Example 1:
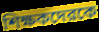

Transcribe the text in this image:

শিক্ষকদেরকে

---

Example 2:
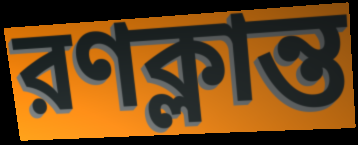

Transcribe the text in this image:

রণক্লান্ত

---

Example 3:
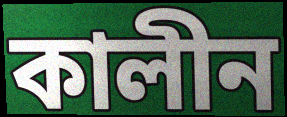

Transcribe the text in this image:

কালীন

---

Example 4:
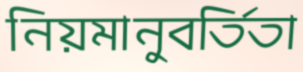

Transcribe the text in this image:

নিয়মানুবর্তিতা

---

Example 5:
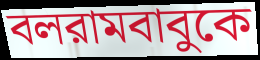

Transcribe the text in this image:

বলরামবাবুকে